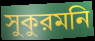
সুকুরমনি